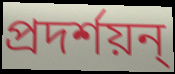
প্রদর্শয়ন্